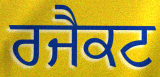
ਰਜੈਕਟ